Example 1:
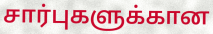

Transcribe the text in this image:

சார்புகளுக்கான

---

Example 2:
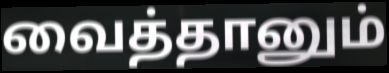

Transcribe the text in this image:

வைத்தானும்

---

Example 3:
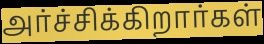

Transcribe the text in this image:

அர்ச்சிக்கிறார்கள்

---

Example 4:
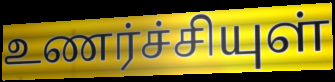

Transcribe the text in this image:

உணர்ச்சியுள்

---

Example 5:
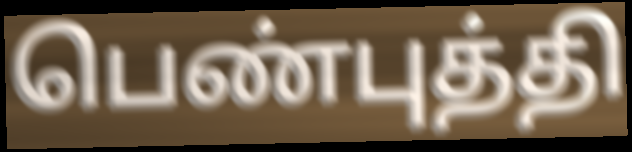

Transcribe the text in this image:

பெண்புத்தி